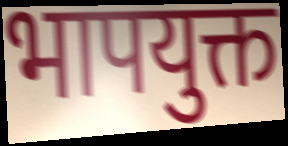
भापयुक्त